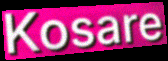
Kosare